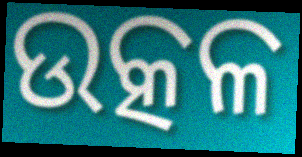
ଉତ୍କଳ